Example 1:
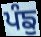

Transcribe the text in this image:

ਪੰਙੁ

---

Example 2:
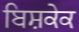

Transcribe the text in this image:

ਬਿਸ਼ਕੇਕ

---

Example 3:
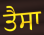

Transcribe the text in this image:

ਤੈਸਾ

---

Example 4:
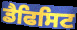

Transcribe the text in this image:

ਡੈਫਿਸਿਟ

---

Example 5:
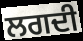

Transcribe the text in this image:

ਲਗਦੀ